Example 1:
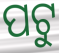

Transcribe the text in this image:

ପଟୁ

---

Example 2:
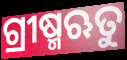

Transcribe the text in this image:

ଗ୍ରୀଷ୍ମଋତୁ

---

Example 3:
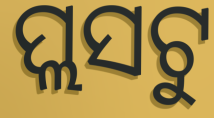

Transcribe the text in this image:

ପ୍ଲସଟୁ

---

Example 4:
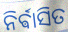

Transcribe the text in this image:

ନିର୍ଵାସିତ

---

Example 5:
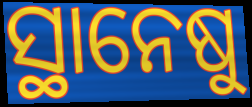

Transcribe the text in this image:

ସ୍ଥାନେଷୁ